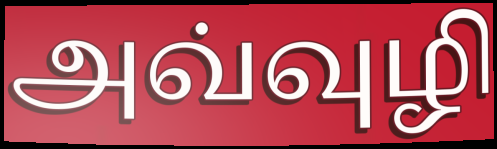
அவ்வுழி